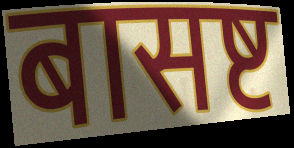
बासष्ट